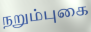
நறும்புகை